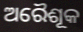
ଅରୈଶୂକ